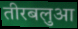
तीरबलुआ